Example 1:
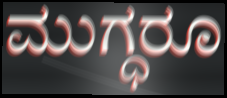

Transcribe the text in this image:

ಮುಗ್ಧರೂ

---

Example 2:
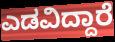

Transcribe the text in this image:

ಎಡವಿದ್ದಾರೆ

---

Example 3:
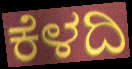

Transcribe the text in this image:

ಕೆಳದಿ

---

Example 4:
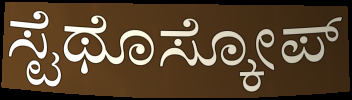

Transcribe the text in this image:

ಸ್ಟೆಥೊಸ್ಕೋಪ್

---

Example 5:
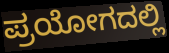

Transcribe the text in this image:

ಪ್ರಯೋಗದಲ್ಲಿ